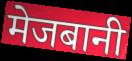
मेजबानी